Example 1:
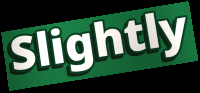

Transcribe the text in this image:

Slightly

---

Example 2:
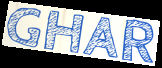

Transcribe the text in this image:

GHAR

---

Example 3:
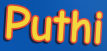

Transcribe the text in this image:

Puthi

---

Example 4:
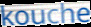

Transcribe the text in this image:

kouche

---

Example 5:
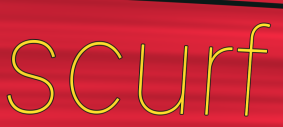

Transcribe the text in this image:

scurf